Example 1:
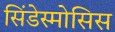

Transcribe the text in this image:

सिंडेस्मोसिस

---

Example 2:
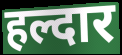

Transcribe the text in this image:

हल्दार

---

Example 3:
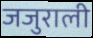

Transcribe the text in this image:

जजुराली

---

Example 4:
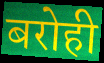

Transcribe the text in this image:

बरोही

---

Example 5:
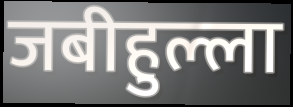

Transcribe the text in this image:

जबीहुल्ला